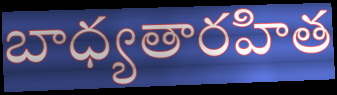
బాధ్యతారహిత